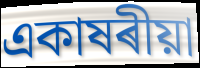
একাষৰীয়া